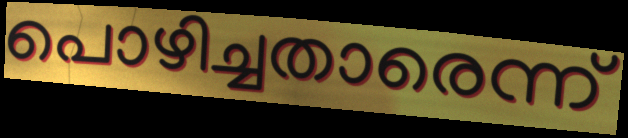
പൊഴിച്ചതാരെന്ന്